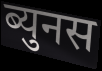
ब्युनस